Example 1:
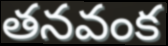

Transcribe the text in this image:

తనవంక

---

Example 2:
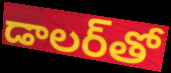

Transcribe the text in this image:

డాలర్‌తో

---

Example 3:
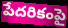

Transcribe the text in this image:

పేదరికంపై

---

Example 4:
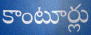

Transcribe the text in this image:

కాంటూర్లు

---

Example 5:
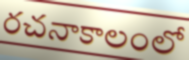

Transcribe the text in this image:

రచనాకాలంలో